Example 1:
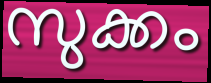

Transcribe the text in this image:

സുക്കം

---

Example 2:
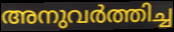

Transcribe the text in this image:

അനുവർത്തിച്ച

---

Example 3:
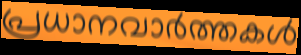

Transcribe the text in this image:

പ്രധാനവാർത്തകൾ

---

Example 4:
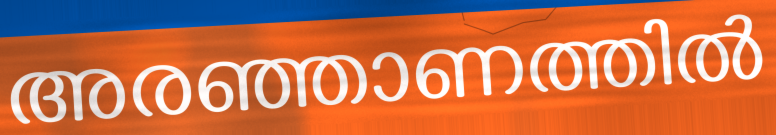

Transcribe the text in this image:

അരഞ്ഞാണത്തിൽ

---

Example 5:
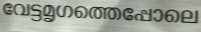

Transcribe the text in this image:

വേട്ടമൃഗത്തെപ്പോലെ